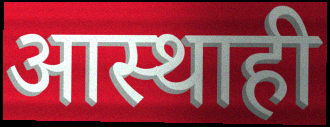
आस्थाही